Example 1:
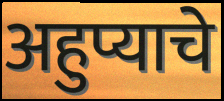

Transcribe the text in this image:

अहुप्याचे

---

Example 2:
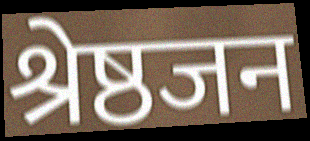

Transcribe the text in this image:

श्रेष्ठजन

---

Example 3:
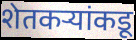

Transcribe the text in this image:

शेतकऱ्यांकडू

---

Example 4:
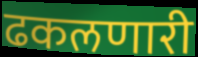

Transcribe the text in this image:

ढकलणारी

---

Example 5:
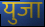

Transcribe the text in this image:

युजा